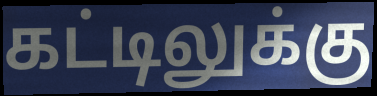
கட்டிலுக்கு